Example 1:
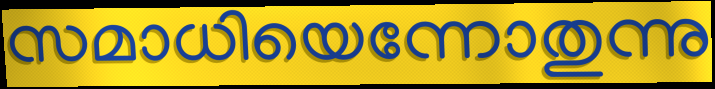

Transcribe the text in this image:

സമാധിയെന്നോതുന്നു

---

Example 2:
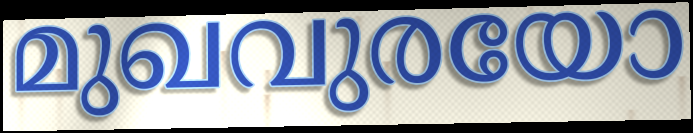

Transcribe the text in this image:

മുഖവുരയോ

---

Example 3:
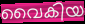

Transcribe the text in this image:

വൈകിയ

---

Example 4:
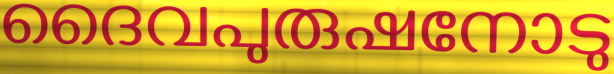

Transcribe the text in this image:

ദൈവപുരുഷനോടു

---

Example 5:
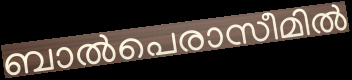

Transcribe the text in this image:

ബാൽപെരാസീമിൽ